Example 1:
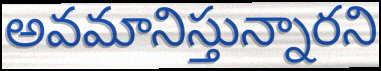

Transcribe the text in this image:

అవమానిస్తున్నారని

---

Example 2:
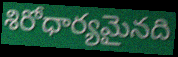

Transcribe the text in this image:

శిరోధార్యమైనది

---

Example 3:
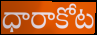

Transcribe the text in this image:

ధారాకోట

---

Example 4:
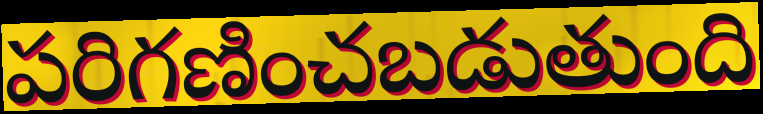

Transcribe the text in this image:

పరిగణించబడుతుంది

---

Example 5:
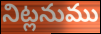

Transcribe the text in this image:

నిట్లనుము